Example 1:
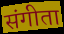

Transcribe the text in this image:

संगीता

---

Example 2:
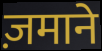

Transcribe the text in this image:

ज़माने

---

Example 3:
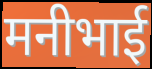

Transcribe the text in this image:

मनीभाई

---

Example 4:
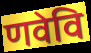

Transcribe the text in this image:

णवेवि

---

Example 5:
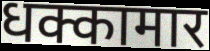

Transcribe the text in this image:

धक्कामार